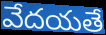
వేదయతే